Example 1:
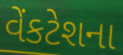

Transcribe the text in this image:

વેંકટેશના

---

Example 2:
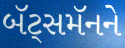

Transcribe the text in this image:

બૅટ્સમૅનને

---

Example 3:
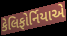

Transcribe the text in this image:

કેલિફોર્નિયાએ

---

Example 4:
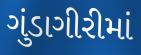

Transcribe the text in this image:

ગુંડાગીરીમાં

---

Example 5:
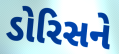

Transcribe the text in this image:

ડોરિસને